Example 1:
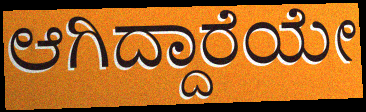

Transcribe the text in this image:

ಆಗಿದ್ದಾರೆಯೇ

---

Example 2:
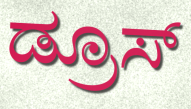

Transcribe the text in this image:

ಡ್ರೂಸ್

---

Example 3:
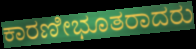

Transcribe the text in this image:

ಕಾರಣೀಭೂತರಾದರು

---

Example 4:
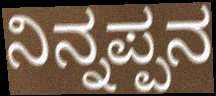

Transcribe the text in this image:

ನಿನ್ನಪ್ಪನ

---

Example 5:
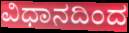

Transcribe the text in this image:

ವಿಧಾನದಿಂದ